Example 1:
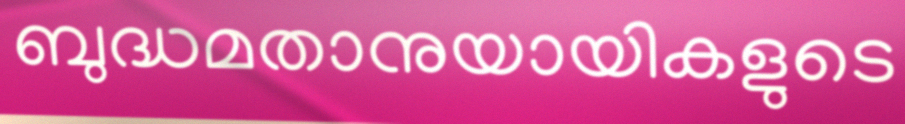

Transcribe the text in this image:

ബുദ്ധമതാനുയായികളുടെ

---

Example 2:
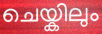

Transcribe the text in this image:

ചെയ്കിലും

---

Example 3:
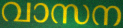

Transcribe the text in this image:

വാസന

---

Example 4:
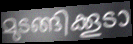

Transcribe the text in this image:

മുടങ്ങിക്കൂടാ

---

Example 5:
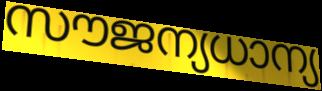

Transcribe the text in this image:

സൗജന്യധാന്യ